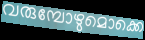
വരുമ്പോഴുമൊക്കെ